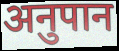
अनुपान